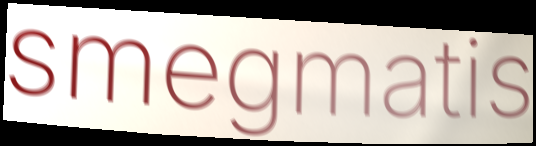
smegmatis